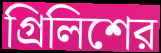
গ্রিলিশের